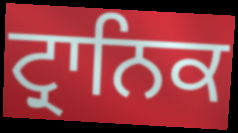
ਟ੍ਰਾਨਿਕ